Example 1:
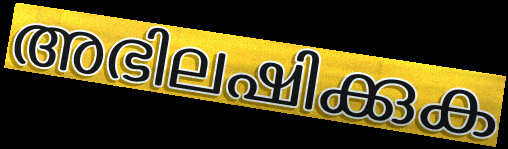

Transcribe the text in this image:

അഭിലഷിക്കുക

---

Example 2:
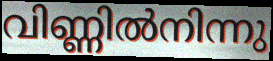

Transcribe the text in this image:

വിണ്ണിൽനിന്നു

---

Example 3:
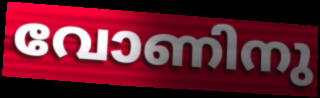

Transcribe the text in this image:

വോണിനു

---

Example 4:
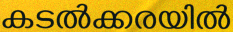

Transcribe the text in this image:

കടൽക്കരയിൽ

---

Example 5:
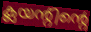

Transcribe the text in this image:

ക്ലയന്റിന്റെ